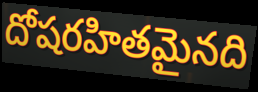
దోషరహితమైనది